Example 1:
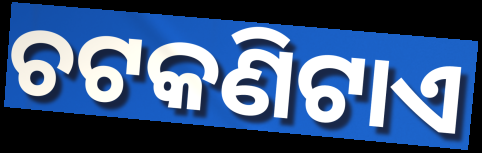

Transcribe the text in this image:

ଚଟକଣିଟାଏ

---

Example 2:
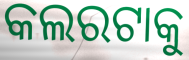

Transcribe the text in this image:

କଲରଟାକୁ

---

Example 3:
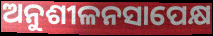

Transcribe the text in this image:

ଅନୁଶୀଳନସାପେକ୍ଷ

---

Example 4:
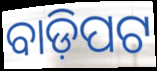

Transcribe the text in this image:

ବାଡ଼ିପଟ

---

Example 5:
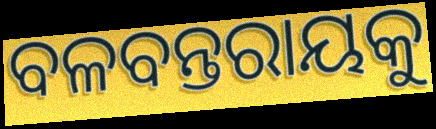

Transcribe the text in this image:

ବଳବନ୍ତରାୟକୁ